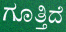
ಗೂತ್ತಿದೆ